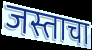
जस्ताचा